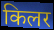
किलर